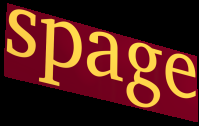
spage